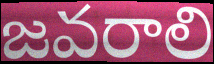
జవరాలి